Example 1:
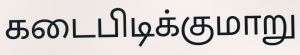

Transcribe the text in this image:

கடைபிடிக்குமாறு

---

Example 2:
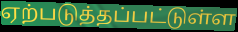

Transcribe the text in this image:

ஏற்படுத்தப்பட்டுள்ள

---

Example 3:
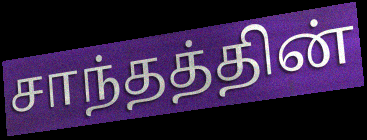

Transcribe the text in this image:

சாந்தத்தின்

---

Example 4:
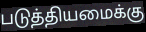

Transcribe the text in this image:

படுத்தியமைக்கு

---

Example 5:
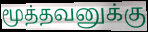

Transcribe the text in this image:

மூத்தவனுக்கு